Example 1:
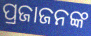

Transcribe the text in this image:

ପ୍ରଜାଜନଙ୍କ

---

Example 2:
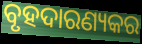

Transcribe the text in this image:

ବୃହଦାରଣ୍ୟକର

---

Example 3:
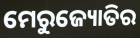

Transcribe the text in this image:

ମେରୁଜ୍ୟୋତିର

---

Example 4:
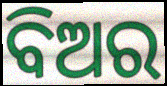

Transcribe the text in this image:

ବିଅର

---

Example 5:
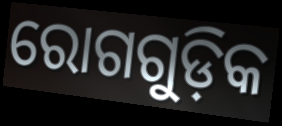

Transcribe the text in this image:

ରୋଗଗୁଡ଼ିକ